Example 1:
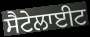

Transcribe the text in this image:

ਸੈਟੇਲਾਈਟ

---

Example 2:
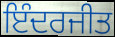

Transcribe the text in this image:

ਇੰਦਰਜੀਤ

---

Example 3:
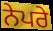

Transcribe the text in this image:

ਨੇਪਰੇ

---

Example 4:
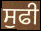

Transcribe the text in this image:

ਸੁਫੀ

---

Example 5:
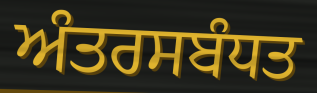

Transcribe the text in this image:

ਅੰਤਰਸਬੰਧਤ